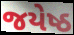
જયેષ્ઠ